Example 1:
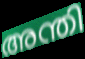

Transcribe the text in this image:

അന്തി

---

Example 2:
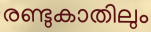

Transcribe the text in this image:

രണ്ടുകാതിലും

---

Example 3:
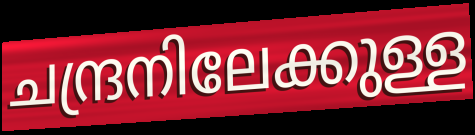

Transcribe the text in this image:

ചന്ദ്രനിലേക്കുള്ള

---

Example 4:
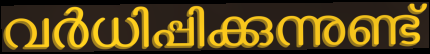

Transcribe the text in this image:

വർധിപ്പിക്കുന്നുണ്ട്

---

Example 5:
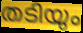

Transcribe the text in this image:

തടിയും